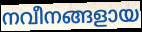
നവീനങ്ങളായ